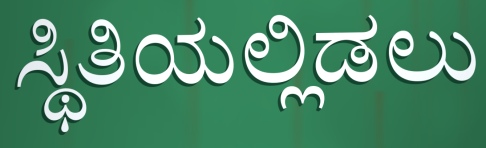
ಸ್ಥಿತಿಯಲ್ಲಿಡಲು